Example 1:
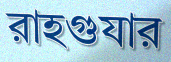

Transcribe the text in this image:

রাহগুযার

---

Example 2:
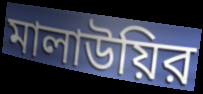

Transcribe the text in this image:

মালাউয়ির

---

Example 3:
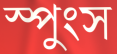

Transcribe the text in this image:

স্পুংস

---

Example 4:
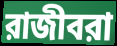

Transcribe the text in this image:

রাজীবরা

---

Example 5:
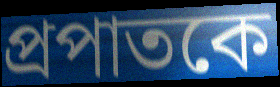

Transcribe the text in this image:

প্রপাতকে